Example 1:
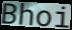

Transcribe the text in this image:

Bhoi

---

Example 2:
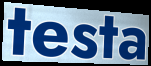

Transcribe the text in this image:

testa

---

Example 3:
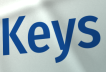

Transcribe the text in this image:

Keys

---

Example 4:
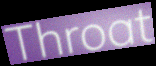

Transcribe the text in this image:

Throat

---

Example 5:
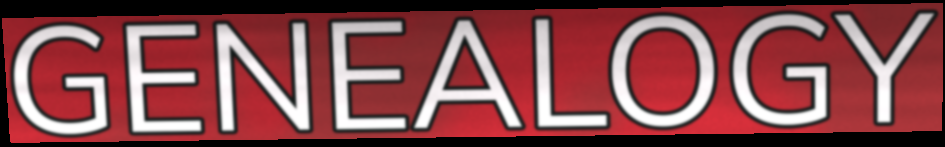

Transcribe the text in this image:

GENEALOGY